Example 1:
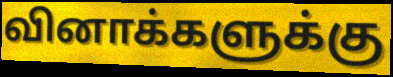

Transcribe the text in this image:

வினாக்களுக்கு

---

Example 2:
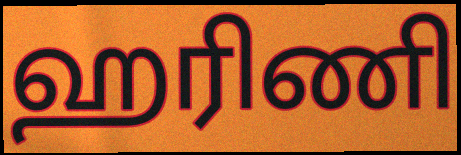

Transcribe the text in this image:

ஹரிணி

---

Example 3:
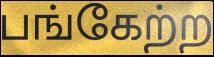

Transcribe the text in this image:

பங்கேற்ற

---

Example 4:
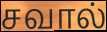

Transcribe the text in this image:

சவால்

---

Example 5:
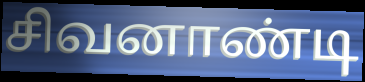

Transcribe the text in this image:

சிவனாண்டி